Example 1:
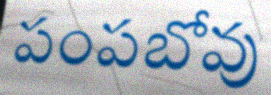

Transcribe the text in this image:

పంపబోవు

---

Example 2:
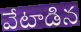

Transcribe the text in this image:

వేటాడిన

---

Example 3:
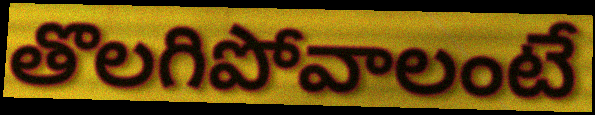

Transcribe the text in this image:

తొలగిపోవాలంటే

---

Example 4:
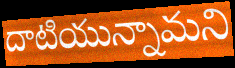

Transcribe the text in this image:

దాటియున్నామని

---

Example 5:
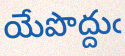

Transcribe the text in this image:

యేపొద్దుఁ